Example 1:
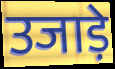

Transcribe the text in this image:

उजाड़े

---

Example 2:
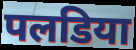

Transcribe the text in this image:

पलडिया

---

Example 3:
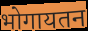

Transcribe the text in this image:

भोगायतन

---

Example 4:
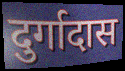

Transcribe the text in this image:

दुर्गादास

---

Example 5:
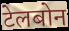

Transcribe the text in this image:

टेलबोन